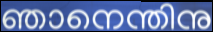
ഞാനെന്തിനു